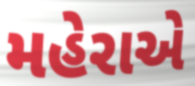
મહેરાએ